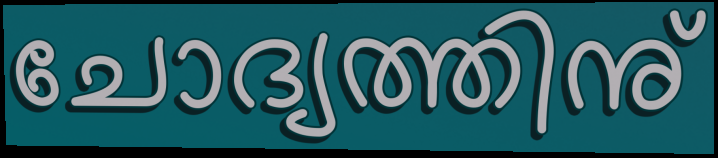
ചോദ്യത്തിനു്